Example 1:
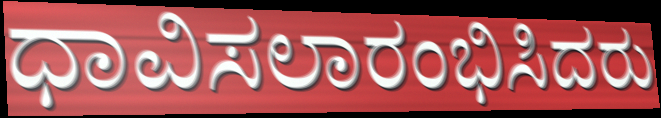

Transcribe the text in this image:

ಧಾವಿಸಲಾರಂಭಿಸಿದರು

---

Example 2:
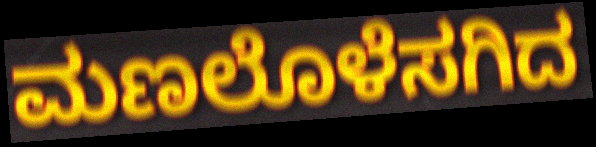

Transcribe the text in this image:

ಮಣಲೊಳೆಸಗಿದ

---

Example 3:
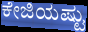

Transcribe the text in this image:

ಕೇಜಿಯಷ್ಟು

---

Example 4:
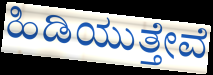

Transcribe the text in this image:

ಹಿಡಿಯುತ್ತೇವೆ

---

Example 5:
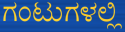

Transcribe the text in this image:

ಗಂಟುಗಳಲ್ಲಿ